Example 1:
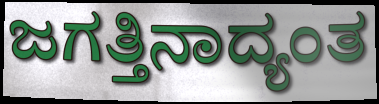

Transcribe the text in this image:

ಜಗತ್ತಿನಾದ್ಯಂತ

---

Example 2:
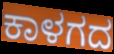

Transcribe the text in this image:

ಕಾಳಗದ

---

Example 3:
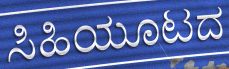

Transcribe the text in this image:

ಸಿಹಿಯೂಟದ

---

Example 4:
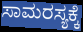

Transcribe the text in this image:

ಸಾಮರಸ್ಯಕ್ಕೆ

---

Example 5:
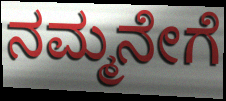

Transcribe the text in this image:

ನಮ್ಮನೇಗೆ